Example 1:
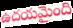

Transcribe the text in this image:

ఉదయమైంది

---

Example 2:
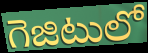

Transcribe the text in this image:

గెజిటులో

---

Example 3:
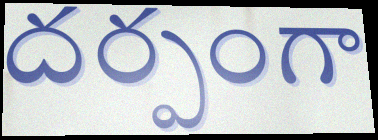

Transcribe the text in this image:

దర్పంగా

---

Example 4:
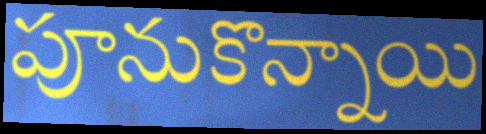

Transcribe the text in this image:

పూనుకొన్నాయి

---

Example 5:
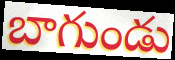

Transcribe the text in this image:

బాగుండు